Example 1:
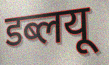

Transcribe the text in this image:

डब्लयू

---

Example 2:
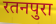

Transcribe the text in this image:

रतनपुरा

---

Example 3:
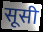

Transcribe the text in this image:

सूसी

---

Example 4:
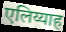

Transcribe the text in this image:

एलिय्याह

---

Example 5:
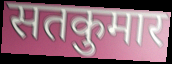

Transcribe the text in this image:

सतकुमार